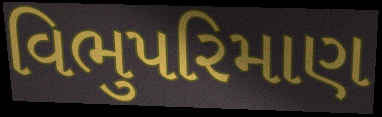
વિભુપરિમાણ